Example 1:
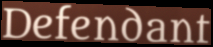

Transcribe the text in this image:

Defendant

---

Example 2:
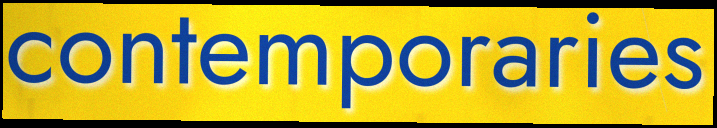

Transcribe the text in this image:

contemporaries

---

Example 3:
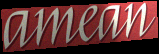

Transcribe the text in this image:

amean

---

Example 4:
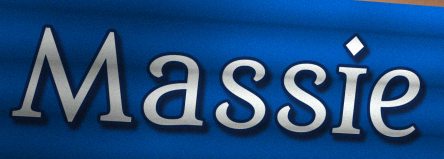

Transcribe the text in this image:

Massie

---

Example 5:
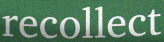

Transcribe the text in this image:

recollect